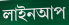
লাইনআপ